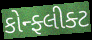
કોન્ફ્લીક્ટ